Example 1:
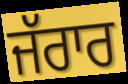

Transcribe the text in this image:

ਜੱਰਾਰ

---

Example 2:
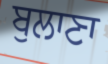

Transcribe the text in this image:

ਬੁਲਾਣਾ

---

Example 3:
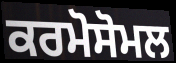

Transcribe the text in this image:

ਕਰਮੋਸੋਮਲ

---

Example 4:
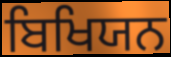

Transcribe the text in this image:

ਬਿਖਿਯਨ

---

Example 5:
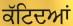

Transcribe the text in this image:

ਕੱਟਿਦਆਂ